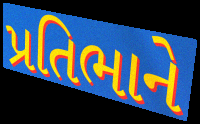
પ્રતિભાને